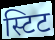
स्टिट